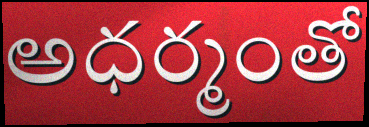
అధర్మంతో